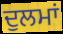
ਦੁਲਮਾਂ